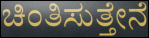
ಚಿಂತಿಸುತ್ತೇನೆ